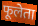
फूलेता